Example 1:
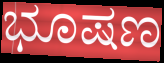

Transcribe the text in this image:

ಭೂಷಣ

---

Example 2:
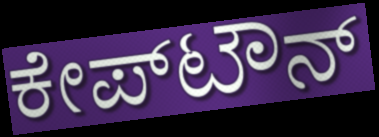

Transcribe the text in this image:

ಕೇಪ್‌ಟೌನ್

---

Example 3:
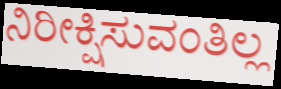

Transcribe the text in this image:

ನಿರೀಕ್ಷಿಸುವಂತಿಲ್ಲ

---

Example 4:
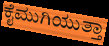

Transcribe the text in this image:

ಕೈಮುಗಿಯುತ್ತಾ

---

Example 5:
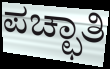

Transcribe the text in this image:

ಪಚ್ಛಾತಿ